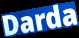
Darda